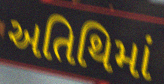
અતિથિમાં